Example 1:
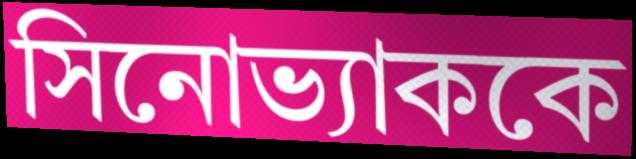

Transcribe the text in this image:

সিনোভ্যাককে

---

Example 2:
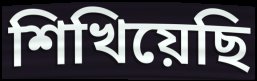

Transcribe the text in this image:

শিখিয়েছি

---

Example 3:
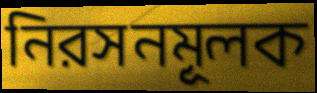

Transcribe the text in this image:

নিরসনমূলক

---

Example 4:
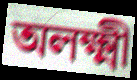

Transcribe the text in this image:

অলক্ষ্মী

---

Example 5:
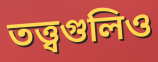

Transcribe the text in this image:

তত্ত্বগুলিও